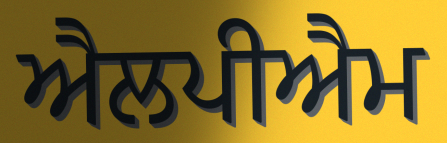
ਐਲਪੀਐਮ